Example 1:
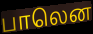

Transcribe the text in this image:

பாலென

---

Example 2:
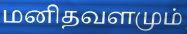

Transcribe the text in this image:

மனிதவளமும்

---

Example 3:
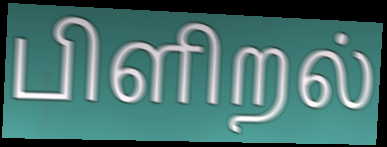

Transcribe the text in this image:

பிளிறல்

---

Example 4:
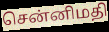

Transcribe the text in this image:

சென்னிமதி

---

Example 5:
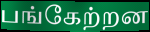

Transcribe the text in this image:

பங்கேற்றன